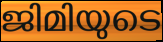
ജിമിയുടെ